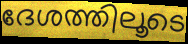
ദേശത്തിലൂടെ